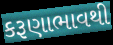
કરૂણાભાવથી